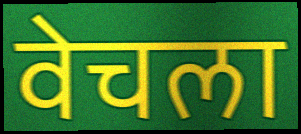
वेचला